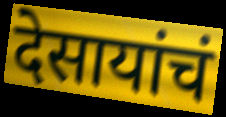
देसायांचं